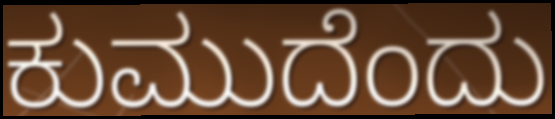
ಕುಮುದೆಂದು